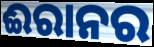
ଈରାନର